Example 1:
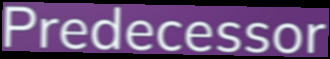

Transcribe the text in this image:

Predecessor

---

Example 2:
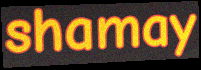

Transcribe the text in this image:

shamay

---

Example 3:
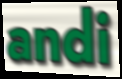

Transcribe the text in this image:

andi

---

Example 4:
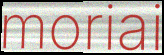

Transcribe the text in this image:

moriai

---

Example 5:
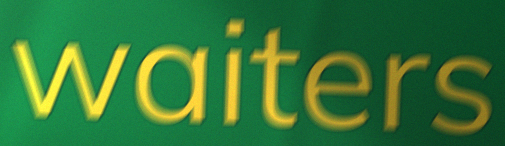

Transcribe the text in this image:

waiters